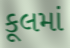
કૂલમાં